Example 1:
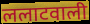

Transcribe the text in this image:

ललाटवाली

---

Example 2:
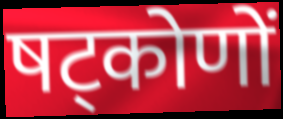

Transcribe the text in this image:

षट्कोणों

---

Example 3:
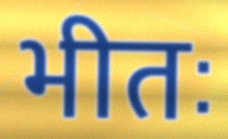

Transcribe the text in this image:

भीतः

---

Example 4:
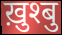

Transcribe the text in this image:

ख़ुश्बु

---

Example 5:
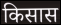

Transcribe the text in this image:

किसास